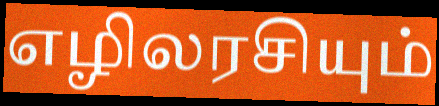
எழிலரசியும்